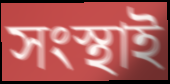
সংস্থাই